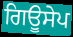
ਗਿਊਸੇਪ